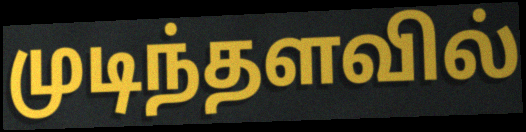
முடிந்தளவில்